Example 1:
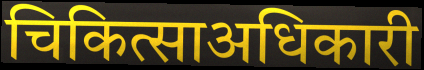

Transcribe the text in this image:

चिकित्साअधिकारी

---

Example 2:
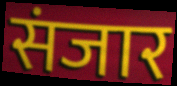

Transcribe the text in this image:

संजार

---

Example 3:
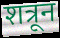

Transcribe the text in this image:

शत्रून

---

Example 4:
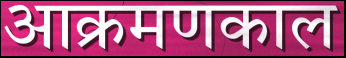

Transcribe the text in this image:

आक्रमणकाल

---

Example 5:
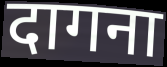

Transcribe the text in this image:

दागना